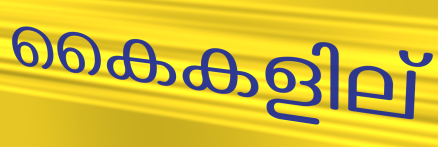
കൈകളില്